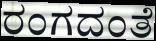
ರಂಗದಂತೆ